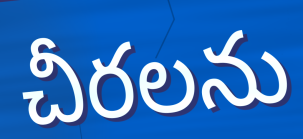
చీరలను